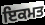
ਇਕਮਤ